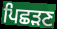
ਪਿਛੜਣ